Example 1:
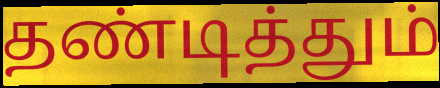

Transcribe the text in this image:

தண்டித்தும்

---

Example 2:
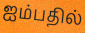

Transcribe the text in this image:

ஐம்பதில்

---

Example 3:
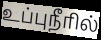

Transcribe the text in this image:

உப்புநீரில்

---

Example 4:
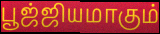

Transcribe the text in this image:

பூஜ்ஜியமாகும்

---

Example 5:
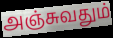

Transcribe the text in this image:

அஞ்சுவதும்